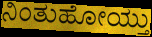
ನಿಂತುಹೋಯ್ತು